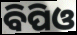
ବିପିଓ